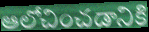
ఆలోచించడానికి